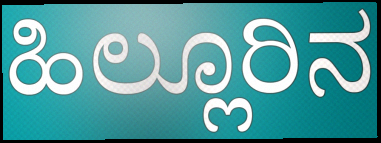
ಹಿಲ್ಲೂರಿನ